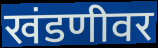
खंडणीवर